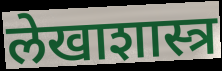
लेखाशास्त्र